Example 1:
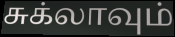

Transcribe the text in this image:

சுக்லாவும்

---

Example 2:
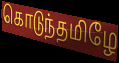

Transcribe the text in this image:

கொடுந்தமிழே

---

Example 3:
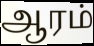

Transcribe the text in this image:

ஆரம்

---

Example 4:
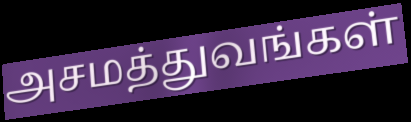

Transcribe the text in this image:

அசமத்துவங்கள்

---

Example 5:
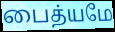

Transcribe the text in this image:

பைத்யமே